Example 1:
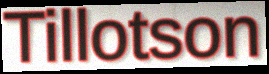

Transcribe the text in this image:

Tillotson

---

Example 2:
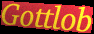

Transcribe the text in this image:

Gottlob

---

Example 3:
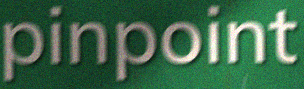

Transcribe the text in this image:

pinpoint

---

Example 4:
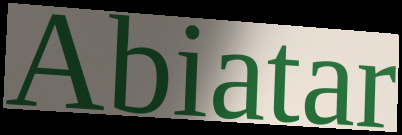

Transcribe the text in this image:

Abiatar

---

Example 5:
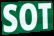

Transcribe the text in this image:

SOT